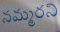
నమ్మరని